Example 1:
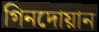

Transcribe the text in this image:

গিনদোয়ান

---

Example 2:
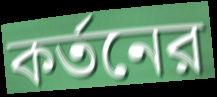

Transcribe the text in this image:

কর্তনের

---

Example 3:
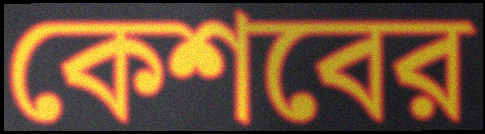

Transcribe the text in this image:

কেশবের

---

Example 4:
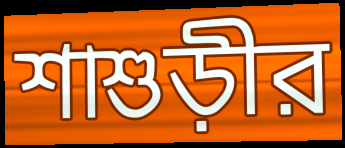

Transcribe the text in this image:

শাশুড়ীর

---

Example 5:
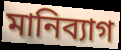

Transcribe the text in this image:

মানিব্যাগ